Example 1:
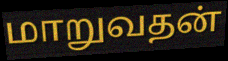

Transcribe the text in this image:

மாறுவதன்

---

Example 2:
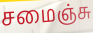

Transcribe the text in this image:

சமைஞ்சு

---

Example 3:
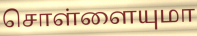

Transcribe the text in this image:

சொள்ளையுமா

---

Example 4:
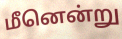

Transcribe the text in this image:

மீனென்று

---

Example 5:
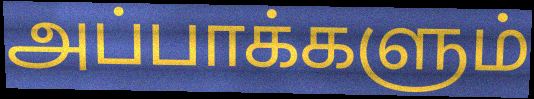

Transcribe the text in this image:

அப்பாக்களும்